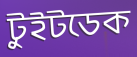
টুইটডেক